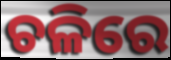
ଚଳିରେ